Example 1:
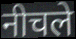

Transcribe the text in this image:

नीचले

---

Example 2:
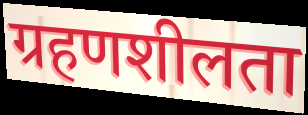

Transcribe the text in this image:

ग्रहणशीलता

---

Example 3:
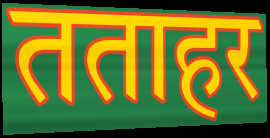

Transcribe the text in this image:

तताहर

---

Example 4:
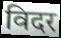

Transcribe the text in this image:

विदर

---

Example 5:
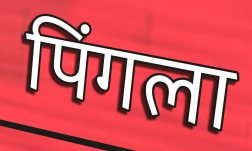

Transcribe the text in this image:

पिंगला